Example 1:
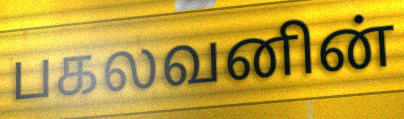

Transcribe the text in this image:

பகலவனின்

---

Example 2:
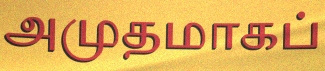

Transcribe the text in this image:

அமுதமாகப்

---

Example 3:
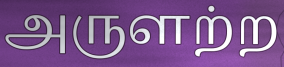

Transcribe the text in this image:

அருளற்ற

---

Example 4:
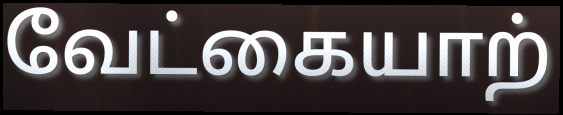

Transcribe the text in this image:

வேட்கையாற்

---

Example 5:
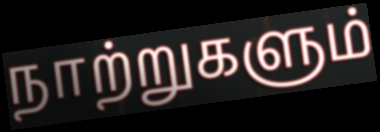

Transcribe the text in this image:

நாற்றுகளும்